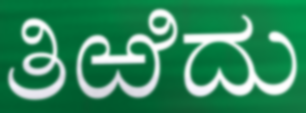
ತಿಱಿದು